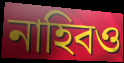
নাহিবও